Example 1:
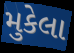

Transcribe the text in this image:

મુકેલા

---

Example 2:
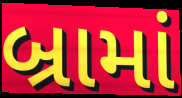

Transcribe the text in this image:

બ્રામાં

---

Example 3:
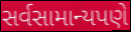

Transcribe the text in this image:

સર્વસામાન્યપણે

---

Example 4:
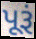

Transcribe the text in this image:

પૂરૂં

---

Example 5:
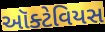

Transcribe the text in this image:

ઑક્ટેવિયસ